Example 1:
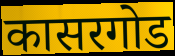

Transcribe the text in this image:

कासरगोड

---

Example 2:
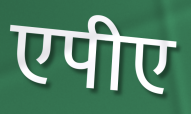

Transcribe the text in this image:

एपीए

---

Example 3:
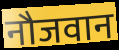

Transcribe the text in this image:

नौजवान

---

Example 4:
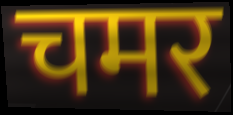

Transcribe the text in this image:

चमर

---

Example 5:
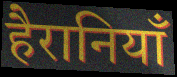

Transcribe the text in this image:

हैरानियाँ